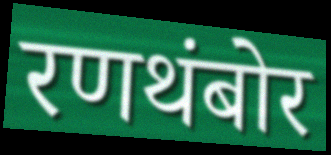
रणथंबोर